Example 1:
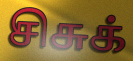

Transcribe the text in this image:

சிசுக்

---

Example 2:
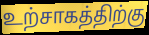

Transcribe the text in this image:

உற்சாகத்திற்கு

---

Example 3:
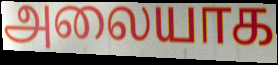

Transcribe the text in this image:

அலையாக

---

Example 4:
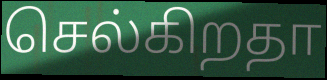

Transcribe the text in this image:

செல்கிறதா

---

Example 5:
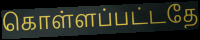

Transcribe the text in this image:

கொள்ளப்பட்டதே